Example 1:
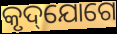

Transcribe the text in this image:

କୃଦ୍‌ଯୋଗେ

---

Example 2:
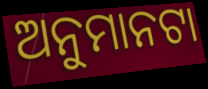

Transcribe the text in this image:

ଅନୁମାନଟା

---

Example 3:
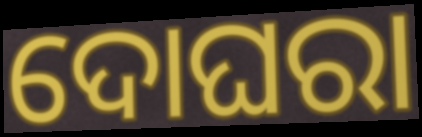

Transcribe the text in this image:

ଦୋଘରା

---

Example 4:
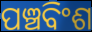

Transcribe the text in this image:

ପଞ୍ଚବିଂଶ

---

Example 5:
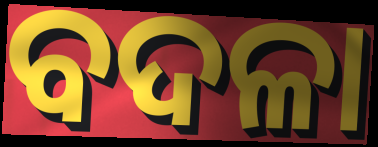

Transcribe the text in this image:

ବଦଳା